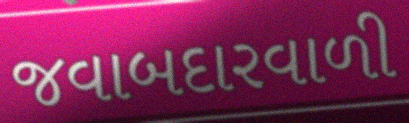
જવાબદારવાળી